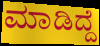
ಮಾಡಿದ್ದೆ